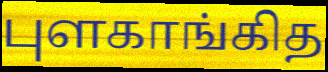
புளகாங்கித